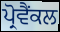
ਪ੍ਰੋਵੈਂਕਲ